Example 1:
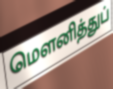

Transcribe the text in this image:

மெளனித்துப்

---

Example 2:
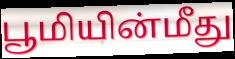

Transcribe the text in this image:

பூமியின்மீது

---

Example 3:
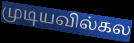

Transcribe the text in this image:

முடியவில்கல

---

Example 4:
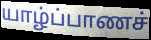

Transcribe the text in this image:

யாழ்ப்பாணச்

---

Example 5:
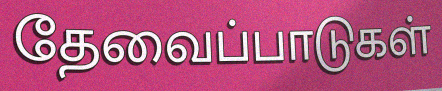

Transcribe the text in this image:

தேவைப்பாடுகள்